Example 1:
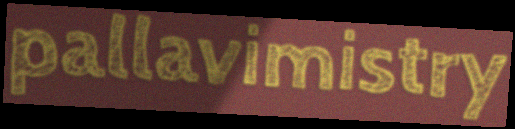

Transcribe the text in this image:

pallavimistry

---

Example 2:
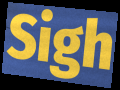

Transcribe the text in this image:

Sigh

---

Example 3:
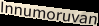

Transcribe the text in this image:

Innumoruvan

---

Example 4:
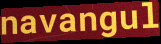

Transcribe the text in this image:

navangul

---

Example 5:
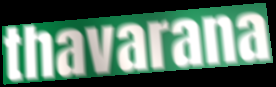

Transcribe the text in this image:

thavarana